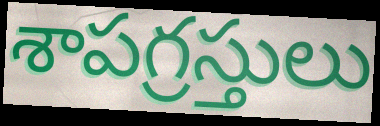
శాపగ్రస్తులు